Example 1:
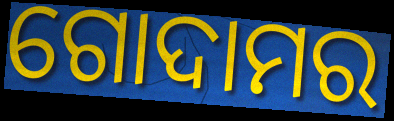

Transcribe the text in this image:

ଗୋଦାମର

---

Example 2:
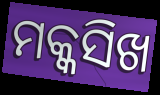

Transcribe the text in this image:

ମକ୍କସିଖ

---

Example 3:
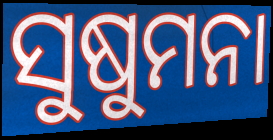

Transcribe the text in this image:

ସୁଷୁମନା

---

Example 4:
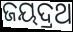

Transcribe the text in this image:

ଜୟଦ୍ରଥ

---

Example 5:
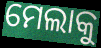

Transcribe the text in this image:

ମେଲାକୁ